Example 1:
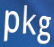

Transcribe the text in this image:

pkg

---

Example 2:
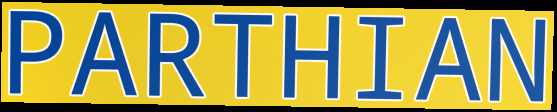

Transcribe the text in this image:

PARTHIAN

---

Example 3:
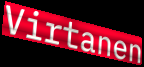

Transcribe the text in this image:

Virtanen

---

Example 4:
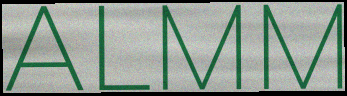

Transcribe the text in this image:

ALMM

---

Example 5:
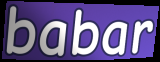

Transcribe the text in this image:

babar